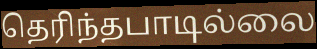
தெரிந்தபாடில்லை